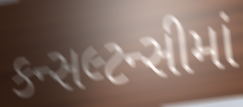
કન્સલ્ટન્સીમાં